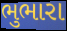
ભુભારા